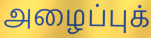
அழைப்புக்